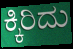
ಕ್ಕಿರಿದು